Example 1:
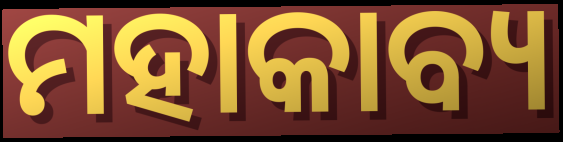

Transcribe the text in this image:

ମହାକାବ୍ୟ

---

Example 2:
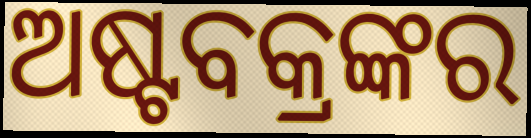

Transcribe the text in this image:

ଅଷ୍ଟବକ୍ରଙ୍କର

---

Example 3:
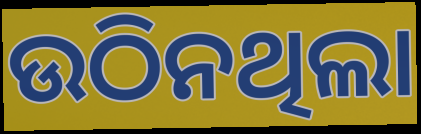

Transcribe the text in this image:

ଉଠିନଥିଲା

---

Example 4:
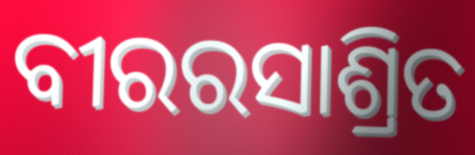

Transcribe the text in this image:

ବୀରରସାଶ୍ରିତ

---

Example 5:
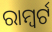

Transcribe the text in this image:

ରାମ୍ବର୍ଟ